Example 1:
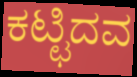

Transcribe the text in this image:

ಕಟ್ಟಿದವ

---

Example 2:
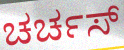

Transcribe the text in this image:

ಚರ್ಚಸ್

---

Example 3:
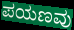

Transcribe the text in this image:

ಪಯಣವು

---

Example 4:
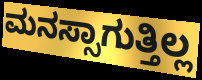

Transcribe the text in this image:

ಮನಸ್ಸಾಗುತ್ತಿಲ್ಲ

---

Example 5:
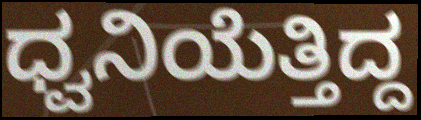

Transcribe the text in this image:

ಧ್ವನಿಯೆತ್ತಿದ್ದ